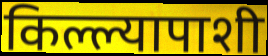
किल्ल्यापाशी